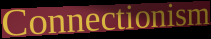
Connectionism